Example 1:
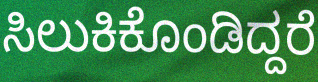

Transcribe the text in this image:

ಸಿಲುಕಿಕೊಂಡಿದ್ದರೆ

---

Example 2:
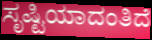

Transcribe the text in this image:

ಸೃಷ್ಟಿಯಾದಂತಿದೆ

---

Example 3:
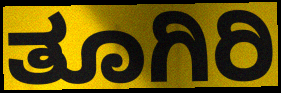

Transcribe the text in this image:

ತೂಗಿರಿ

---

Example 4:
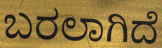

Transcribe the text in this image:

ಬರಲಾಗಿದೆ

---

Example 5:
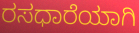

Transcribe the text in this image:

ರಸಧಾರೆಯಾಗಿ